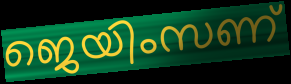
ജെയിംസണ്